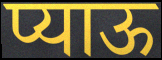
प्याऊ